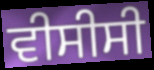
ਵੀਸੀਸੀ